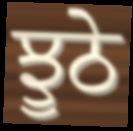
ਝੂਠੇ